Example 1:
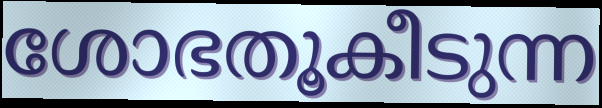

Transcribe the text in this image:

ശോഭതൂകീടുന്ന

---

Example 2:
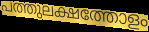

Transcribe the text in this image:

പത്തുലക്ഷത്തോളം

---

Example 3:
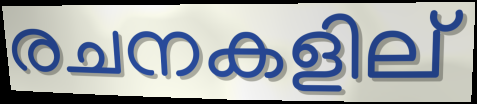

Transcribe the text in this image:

രചനകളില്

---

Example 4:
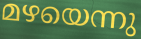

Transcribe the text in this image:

മഴയെന്നു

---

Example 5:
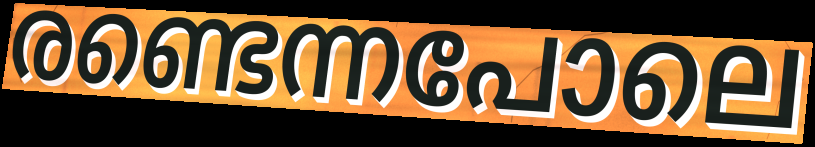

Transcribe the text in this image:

രണ്ടെന്നപോലെ